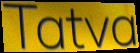
Tatva